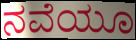
ನವೆಯೂ